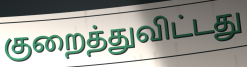
குறைத்துவிட்டது